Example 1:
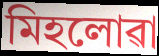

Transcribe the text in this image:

মিহলোৱা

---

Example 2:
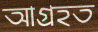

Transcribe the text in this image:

আগ্ৰহত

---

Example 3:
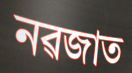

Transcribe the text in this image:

নৱজাত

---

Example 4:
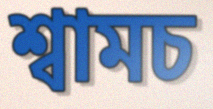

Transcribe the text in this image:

শ্বামচ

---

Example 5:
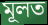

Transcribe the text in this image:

মূলত